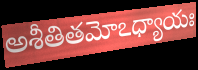
అశీతితమోఽధ్యాయః